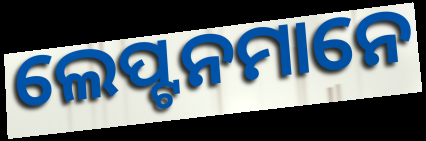
ଲେପ୍ଟନମାନେ